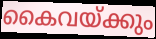
കൈവയ്ക്കും